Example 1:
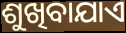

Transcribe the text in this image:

ଶୁଖିବାଯାଏ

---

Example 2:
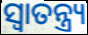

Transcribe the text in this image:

ସ୍ଵାତନ୍ତ୍ର୍ୟ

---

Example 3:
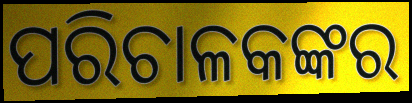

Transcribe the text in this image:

ପରିଚାଳକଙ୍କର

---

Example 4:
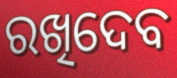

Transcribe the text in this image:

ରଖିଦେବ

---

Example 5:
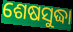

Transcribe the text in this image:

ଶେଷସୁଦ୍ଧା